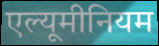
एल्‍यूमीनियम